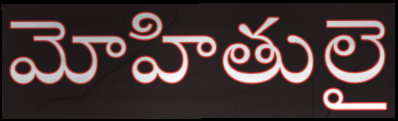
మోహితులై